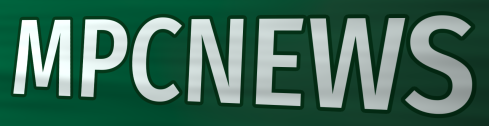
MPCNEWS